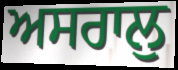
ਅਸਰਾਲੁ